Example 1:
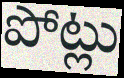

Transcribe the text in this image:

పోట్లు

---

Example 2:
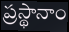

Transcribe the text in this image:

ప్రస్థానాం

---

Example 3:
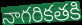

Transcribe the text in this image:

నాగరికతకి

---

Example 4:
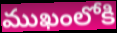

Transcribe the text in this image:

ముఖంలోకి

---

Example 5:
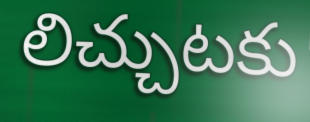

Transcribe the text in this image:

లిచ్చుటకు